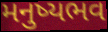
મનુષ્યભવ